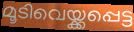
മൂടിവെയ്ക്കപ്പെട്ട